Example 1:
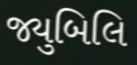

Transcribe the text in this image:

જ્યુબિલિ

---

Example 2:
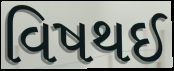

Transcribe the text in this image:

વિષથઈ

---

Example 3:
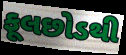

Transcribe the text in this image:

ફૂલછોડથી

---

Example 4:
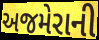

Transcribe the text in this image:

અજમેરાની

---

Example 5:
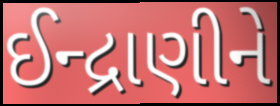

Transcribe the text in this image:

ઈન્દ્રાણીને